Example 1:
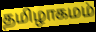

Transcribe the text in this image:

தமிழாகமம்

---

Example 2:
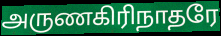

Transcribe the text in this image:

அருணகிரிநாதரே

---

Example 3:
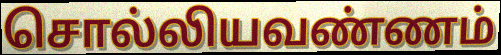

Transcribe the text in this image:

சொல்லியவண்ணம்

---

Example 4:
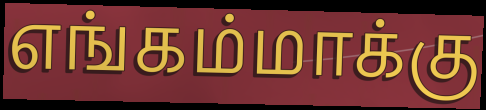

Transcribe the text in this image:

எங்கம்மாக்கு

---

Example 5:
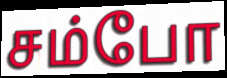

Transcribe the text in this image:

சம்போ